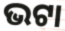
ଭଟା